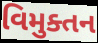
વિમુક્તન